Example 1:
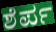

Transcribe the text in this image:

ಶೆರ್ಪ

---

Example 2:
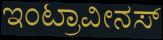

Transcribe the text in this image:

ಇಂಟ್ರಾವೀನಸ್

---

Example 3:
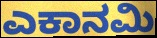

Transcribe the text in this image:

ಎಕಾನಮಿ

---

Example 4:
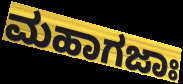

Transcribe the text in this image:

ಮಹಾಗಜಾಃ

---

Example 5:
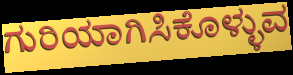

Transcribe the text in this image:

ಗುರಿಯಾಗಿಸಿಕೊಳ್ಳುವ